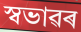
স্বভাৱৰ